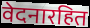
वेदनारहित